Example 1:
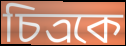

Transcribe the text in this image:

চিত্ৰকে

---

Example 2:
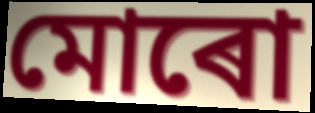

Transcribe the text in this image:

মোৰো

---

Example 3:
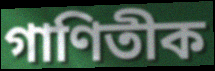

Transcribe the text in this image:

গাণিতীক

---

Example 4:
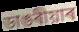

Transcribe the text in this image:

ডাঙৰীয়াৰ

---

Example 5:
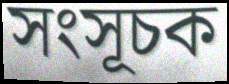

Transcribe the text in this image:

সংসূচক